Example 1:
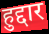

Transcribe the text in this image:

हुद्दार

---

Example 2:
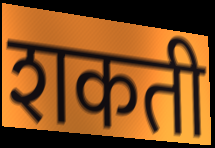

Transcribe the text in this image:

शकती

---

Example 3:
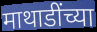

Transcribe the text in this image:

माथाडींच्या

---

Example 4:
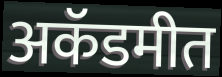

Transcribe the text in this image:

अकॅडमीत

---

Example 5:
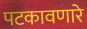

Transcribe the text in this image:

पटकावणारे